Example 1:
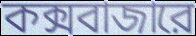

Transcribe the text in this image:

কক্সবাজারে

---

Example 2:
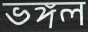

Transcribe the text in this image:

ভঙ্গল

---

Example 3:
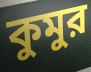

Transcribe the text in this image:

কুমুর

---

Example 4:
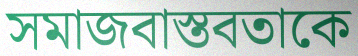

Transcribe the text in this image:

সমাজবাস্তবতাকে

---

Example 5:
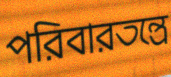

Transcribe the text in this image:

পরিবারতন্ত্রে